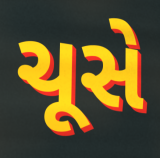
ચૂસે